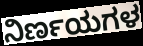
ನಿರ್ಣಯಗಳ